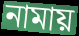
নামায়